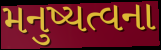
મનુષ્યત્વના